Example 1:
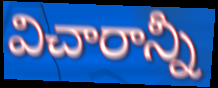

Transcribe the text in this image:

విచారాన్నీ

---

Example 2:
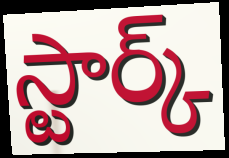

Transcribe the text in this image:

స్టార్క్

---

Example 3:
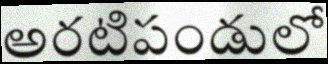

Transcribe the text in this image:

అరటిపండులో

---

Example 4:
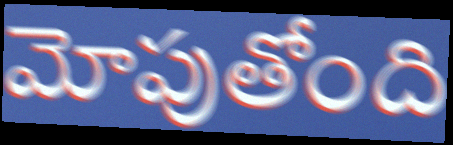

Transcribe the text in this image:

మోపుతోంది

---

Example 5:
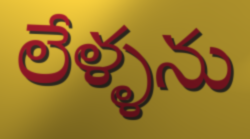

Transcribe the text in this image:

లేళ్ళను